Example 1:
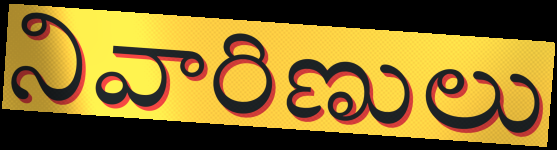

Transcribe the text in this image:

నివారిణులు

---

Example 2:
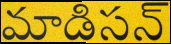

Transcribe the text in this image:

మాడిసన్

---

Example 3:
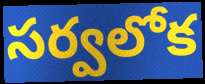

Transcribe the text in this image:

సర్వలోక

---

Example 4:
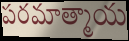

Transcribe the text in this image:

పరమాత్మాయ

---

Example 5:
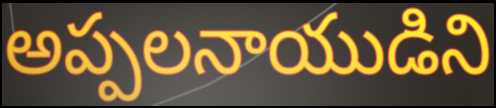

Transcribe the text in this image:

అప్పలనాయుడిని